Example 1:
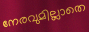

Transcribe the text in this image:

നേരവുമില്ലാതെ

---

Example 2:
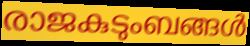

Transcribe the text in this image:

രാജകുടുംബങ്ങൾ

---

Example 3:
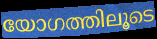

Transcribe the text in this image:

യോഗത്തിലൂടെ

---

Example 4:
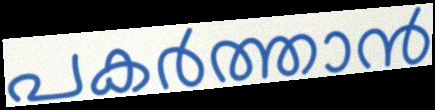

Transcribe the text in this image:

പകർത്താൻ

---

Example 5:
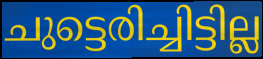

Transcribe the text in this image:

ചുട്ടെരിച്ചിട്ടില്ല